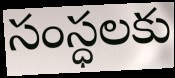
సంస్ధలకు